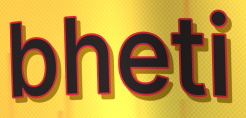
bheti